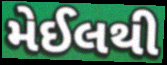
મેઈલથી